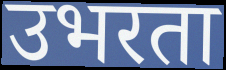
उभरता